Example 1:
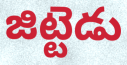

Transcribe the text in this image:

జిట్టెడు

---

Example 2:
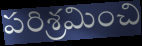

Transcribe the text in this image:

పరిశ్రమించి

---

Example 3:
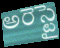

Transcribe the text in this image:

అరెస్టై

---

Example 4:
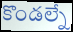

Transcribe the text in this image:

కొండల్నే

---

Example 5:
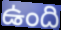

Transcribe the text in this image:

ఉంది